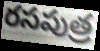
రసపుత్ర